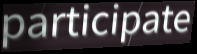
participate